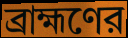
ব্রাহ্মণের